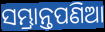
ସମ୍ଭ୍ରାନ୍ତପଣିଆ